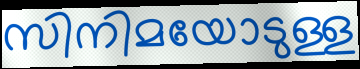
സിനിമയോടുള്ള